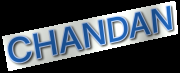
CHANDAN